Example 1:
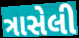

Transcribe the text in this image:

ત્રાસેલી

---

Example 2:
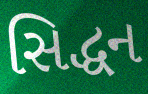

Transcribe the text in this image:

સિદ્ધન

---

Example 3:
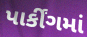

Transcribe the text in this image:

પાર્કીંગમાં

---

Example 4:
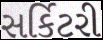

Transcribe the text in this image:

સર્કિટરી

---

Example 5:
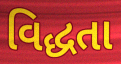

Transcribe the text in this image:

વિદ્ધતા